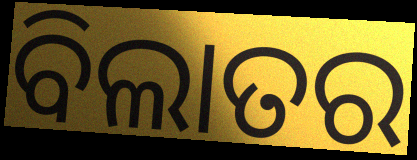
ବିଲାତର